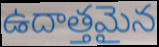
ఉదాత్తమైన